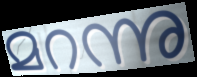
മറന്നു